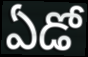
ఏడో